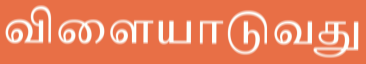
விளையாடுவது